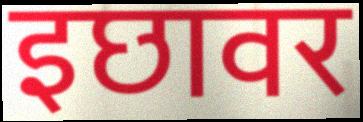
इछावर